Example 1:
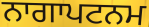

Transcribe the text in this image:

ਨਾਗਾਪਟਨਮ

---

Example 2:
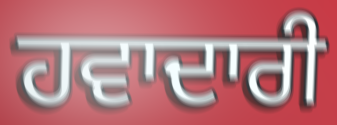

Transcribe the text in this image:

ਹਵਾਦਾਰੀ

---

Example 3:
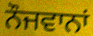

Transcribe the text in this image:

ਨੌਜਵਾਨਾਂ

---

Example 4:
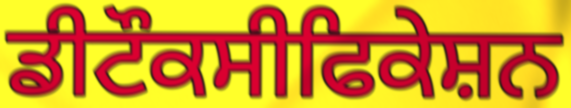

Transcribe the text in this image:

ਡੀਟੌਕਸੀਫਿਕੇਸ਼ਨ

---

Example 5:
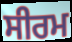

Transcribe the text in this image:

ਸੀਰਮ